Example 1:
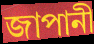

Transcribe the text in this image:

জাপানী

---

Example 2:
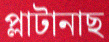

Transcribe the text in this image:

প্লাটানাছ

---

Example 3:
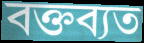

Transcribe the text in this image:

বক্তব্যত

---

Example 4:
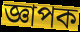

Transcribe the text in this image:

জ্ঞাপক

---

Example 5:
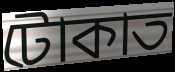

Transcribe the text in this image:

টোকাত